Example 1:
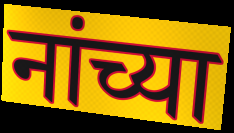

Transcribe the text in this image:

नांच्या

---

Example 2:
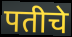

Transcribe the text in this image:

पतीचे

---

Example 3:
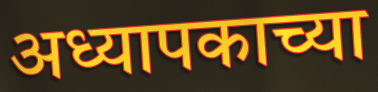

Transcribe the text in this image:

अध्यापकाच्या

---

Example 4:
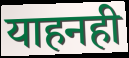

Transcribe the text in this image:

याहनही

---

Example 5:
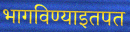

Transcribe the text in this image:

भागविण्याइतपत